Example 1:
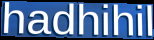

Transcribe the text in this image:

hadhihil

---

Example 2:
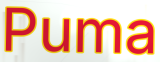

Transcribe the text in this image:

Puma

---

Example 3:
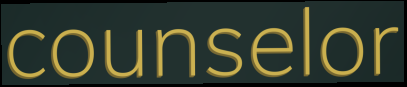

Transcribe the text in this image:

counselor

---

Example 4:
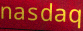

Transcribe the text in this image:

nasdaq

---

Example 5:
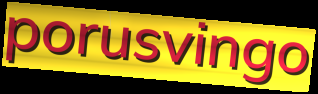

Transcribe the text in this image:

porusvingo